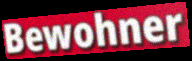
Bewohner